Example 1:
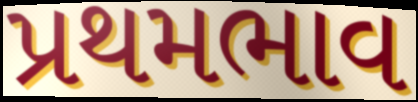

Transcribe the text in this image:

પ્રથમભાવ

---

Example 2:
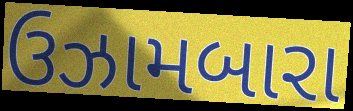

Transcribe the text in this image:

ઉઝામબારા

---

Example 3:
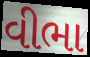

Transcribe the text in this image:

વીભા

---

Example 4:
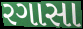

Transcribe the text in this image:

રગાસા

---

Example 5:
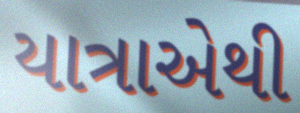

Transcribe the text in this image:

યાત્રાએથી